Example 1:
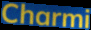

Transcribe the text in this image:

Charmi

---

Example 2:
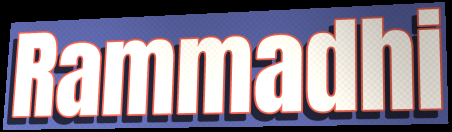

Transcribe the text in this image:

Rammadhi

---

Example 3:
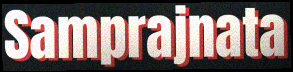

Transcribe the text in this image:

Samprajnata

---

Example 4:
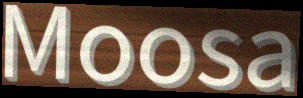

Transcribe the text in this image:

Moosa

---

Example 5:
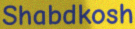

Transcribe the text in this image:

Shabdkosh